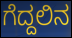
ಗೆದ್ದಲಿನ